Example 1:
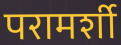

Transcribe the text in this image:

परामर्शी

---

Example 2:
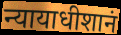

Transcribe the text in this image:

न्यायाधीशानं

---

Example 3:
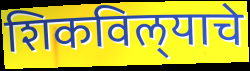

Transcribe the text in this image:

शिकविल्याचे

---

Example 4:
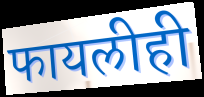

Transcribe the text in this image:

फायलीही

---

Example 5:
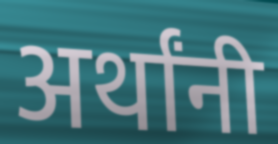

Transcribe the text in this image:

अर्थांनी